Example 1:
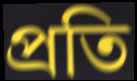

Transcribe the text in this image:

প্ৰতি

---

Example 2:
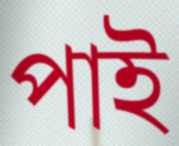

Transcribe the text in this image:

পাই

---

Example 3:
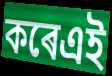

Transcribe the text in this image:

কৰেএই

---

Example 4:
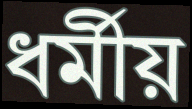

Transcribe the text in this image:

ধৰ্মীয়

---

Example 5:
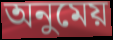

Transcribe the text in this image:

অনুমেয়